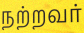
நற்றவர்